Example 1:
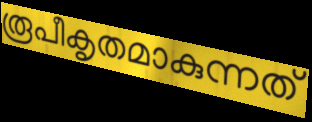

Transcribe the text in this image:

രൂപീകൃതമാകുന്നത്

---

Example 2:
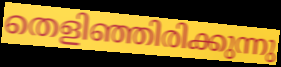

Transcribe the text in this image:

തെളിഞ്ഞിരിക്കുന്നു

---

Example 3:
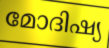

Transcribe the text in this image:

മോദിഷ്യ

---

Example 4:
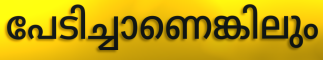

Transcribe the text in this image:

പേടിച്ചാണെങ്കിലും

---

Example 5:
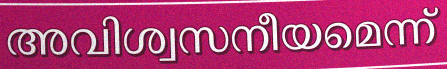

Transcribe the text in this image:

അവിശ്വസനീയമെന്ന്